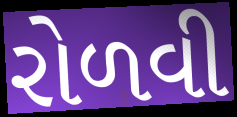
રોળવી